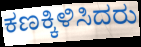
ಕಣಕ್ಕಿಳಿಸಿದರು